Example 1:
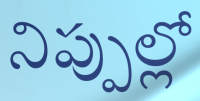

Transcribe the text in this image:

నిప్పుల్లో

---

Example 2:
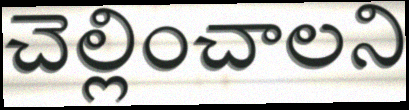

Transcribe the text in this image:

చెల్లించాలని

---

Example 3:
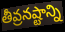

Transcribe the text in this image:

తీవ్రనష్టాన్ని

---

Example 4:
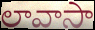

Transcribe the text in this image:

లావాసా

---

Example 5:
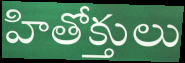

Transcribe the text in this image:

హితోక్తులు